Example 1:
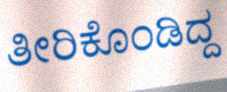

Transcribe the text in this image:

ತೀರಿಕೊಂಡಿದ್ದ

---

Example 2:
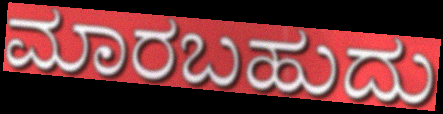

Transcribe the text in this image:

ಮಾರಬಹುದು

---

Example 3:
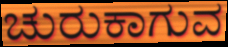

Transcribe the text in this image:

ಚುರುಕಾಗುವ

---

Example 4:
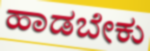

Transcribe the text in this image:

ಹಾಡಬೇಕು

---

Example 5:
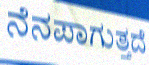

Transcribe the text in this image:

ನೆನಪಾಗುತ್ತದೆ